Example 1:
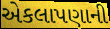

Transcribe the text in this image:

એકલાપણાની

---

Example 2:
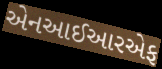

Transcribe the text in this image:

એનઆઈઆરએફ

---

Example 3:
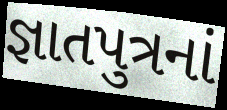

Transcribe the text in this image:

જ્ઞાતપુત્રનાં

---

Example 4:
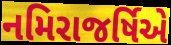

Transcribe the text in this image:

નમિરાજર્ષિએ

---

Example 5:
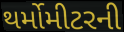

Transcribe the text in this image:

થર્મોમીટરની